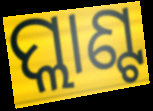
ପ୍ଲାଣ୍ଟ